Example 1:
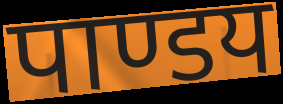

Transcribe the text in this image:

पाण्डय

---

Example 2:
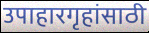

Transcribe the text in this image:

उपाहारगृहांसाठी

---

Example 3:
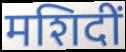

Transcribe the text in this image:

मशिदीं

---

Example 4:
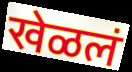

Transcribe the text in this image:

खेळलं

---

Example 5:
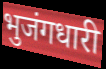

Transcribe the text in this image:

भुजंगधारी